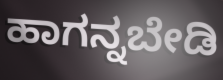
ಹಾಗನ್ನಬೇಡಿ